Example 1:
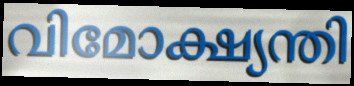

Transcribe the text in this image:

വിമോക്ഷ്യന്തി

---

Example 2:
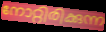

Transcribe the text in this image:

നോറ്റിരിക്കുന്ന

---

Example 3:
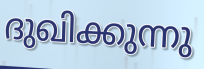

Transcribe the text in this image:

ദുഖിക്കുന്നു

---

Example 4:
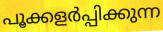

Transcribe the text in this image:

പൂക്കളർപ്പിക്കുന്ന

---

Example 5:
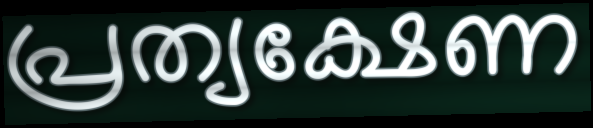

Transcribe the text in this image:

പ്രത്യക്ഷേണ